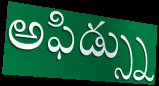
అఫిడ్స్ను